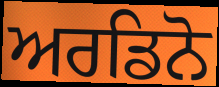
ਅਰਡਿਨੋ